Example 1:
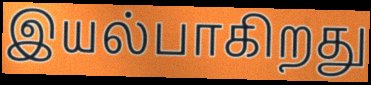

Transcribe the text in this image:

இயல்பாகிறது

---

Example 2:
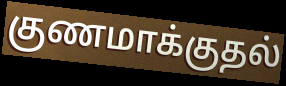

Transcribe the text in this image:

குணமாக்குதல்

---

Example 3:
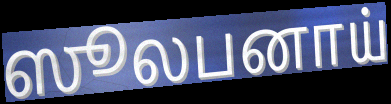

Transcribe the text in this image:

ஸூலபனாய்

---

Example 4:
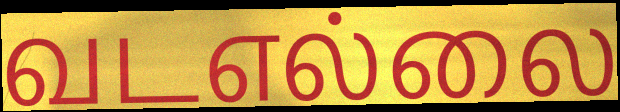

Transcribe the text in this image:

வடஎல்லை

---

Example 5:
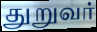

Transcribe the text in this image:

துறுவர்